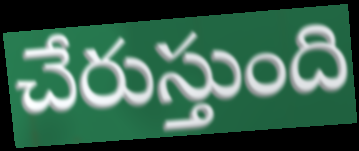
చేరుస్తుంది